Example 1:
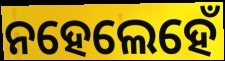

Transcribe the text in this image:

ନହେଲେହେଁ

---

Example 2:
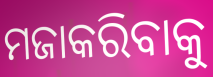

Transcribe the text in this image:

ମଜାକରିବାକୁ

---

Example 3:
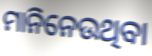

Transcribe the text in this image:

ମାନିନେଉଥିବା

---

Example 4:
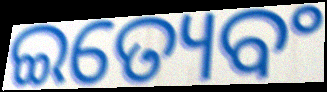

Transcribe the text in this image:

ଇତ୍ୟେବଂ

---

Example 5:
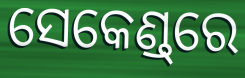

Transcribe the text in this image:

ସେକେଣ୍ଡ୍‌ରେ